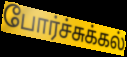
போர்ச்சுக்கல்